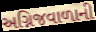
અગ્નિજવાળાની